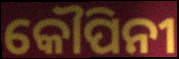
କୌପିନୀ